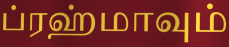
ப்ரஹ்மாவும்